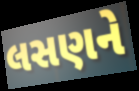
લસણને